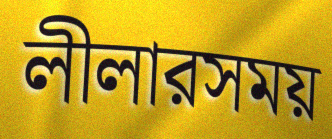
লীলারসময়